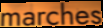
marches